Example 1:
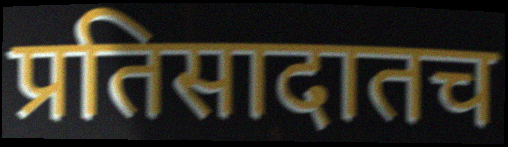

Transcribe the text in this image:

प्रतिसादातच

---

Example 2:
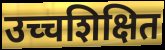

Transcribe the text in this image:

उच्चशिक्षित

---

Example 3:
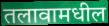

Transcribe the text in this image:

तलावामधील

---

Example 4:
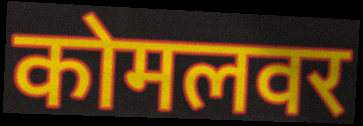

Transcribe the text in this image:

कोमलवर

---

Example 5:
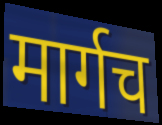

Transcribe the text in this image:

मार्गच